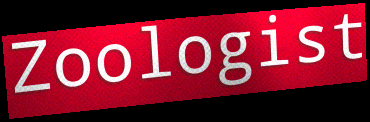
Zoologist